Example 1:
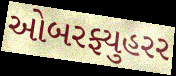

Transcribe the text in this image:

ઓબરફ્યુહરર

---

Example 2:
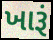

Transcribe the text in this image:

ખારૂં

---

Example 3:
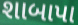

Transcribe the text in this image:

શાબાપા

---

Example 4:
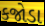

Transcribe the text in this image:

કજોડા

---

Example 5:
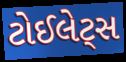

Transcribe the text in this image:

ટોઈલેટ્સ